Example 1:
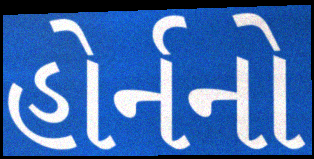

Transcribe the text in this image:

હોર્નનો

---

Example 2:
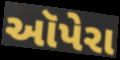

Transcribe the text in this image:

ઑપેરા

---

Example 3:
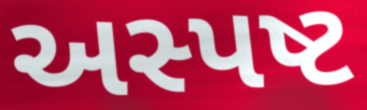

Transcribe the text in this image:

અસ્પષ્ટ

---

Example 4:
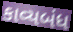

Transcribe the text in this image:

કાવ્યબંધ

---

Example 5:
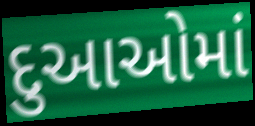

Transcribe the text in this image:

દુઆઓમાં